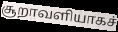
சூறாவளியாகச்